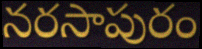
నరసాపురం